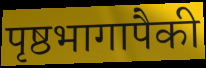
पृष्ठभागापैकी